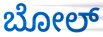
ಬೋಲ್